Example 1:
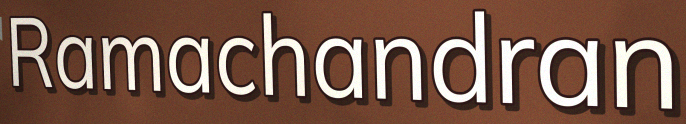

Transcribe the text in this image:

Ramachandran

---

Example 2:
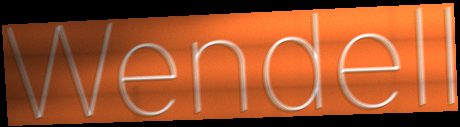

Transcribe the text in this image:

Wendell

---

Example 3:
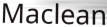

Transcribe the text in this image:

Maclean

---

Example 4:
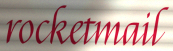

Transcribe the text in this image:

rocketmail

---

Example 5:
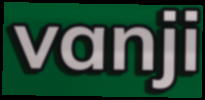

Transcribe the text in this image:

vanji